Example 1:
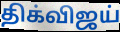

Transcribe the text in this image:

திக்விஜய்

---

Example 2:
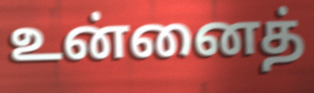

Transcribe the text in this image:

உன்னைத்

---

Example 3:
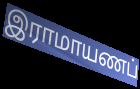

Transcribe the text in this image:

இராமாயணப்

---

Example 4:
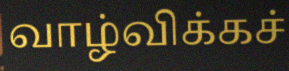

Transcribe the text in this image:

வாழ்விக்கச்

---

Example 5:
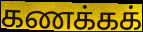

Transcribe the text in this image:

கணக்கக்